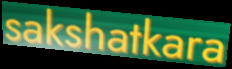
sakshatkara